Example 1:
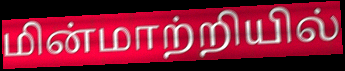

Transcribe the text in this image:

மின்மாற்றியில்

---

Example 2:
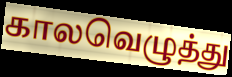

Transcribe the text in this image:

காலவெழுத்து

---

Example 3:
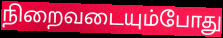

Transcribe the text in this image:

நிறைவடையும்போது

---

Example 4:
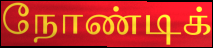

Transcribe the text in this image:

நோண்டிக்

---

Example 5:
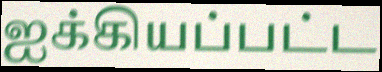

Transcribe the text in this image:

ஐக்கியப்பட்ட